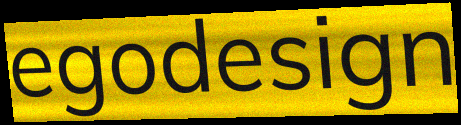
egodesign